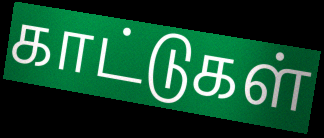
காட்டுகள்